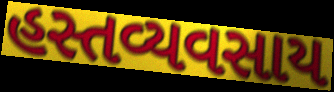
હસ્તવ્યવસાય